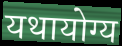
यथायोग्य